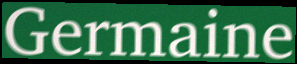
Germaine